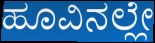
ಹೂವಿನಲ್ಲೇ